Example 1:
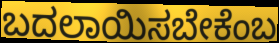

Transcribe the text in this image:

ಬದಲಾಯಿಸಬೇಕೆಂಬ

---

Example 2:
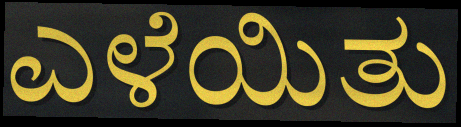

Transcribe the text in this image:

ಎಳೆಯಿತು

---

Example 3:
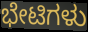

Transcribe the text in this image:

ಭೇಟಿಗಳು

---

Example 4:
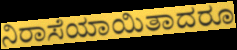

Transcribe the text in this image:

ನಿರಾಸೆಯಾಯಿತಾದರೂ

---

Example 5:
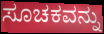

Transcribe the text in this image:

ಸೂಚಕವನ್ನು